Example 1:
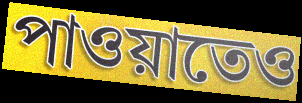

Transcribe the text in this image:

পাওয়াতেও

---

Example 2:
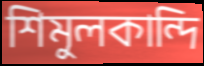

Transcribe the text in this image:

শিমুলকান্দি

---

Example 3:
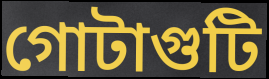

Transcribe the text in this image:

গোটাগুটি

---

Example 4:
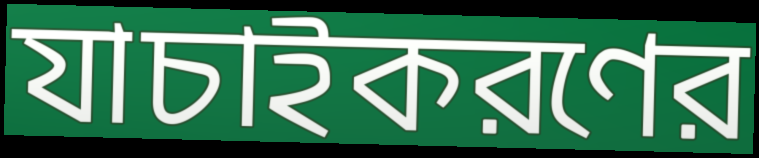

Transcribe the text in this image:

যাচাইকরণের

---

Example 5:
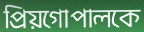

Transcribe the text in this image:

প্রিয়গোপালকে